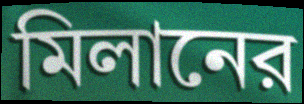
মিলানের